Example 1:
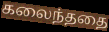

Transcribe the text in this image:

கலைந்ததை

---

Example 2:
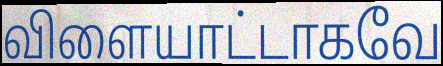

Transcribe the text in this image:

விளையாட்டாகவே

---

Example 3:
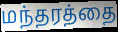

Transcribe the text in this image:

மந்தரத்தை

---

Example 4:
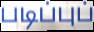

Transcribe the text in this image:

படிப்புப்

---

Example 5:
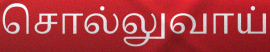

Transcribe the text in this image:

சொல்லுவாய்